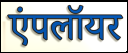
एंपलॉयर